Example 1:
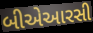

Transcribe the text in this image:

બીએઆરસી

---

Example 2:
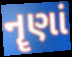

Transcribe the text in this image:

નૄણાં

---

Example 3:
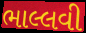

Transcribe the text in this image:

ભાલ્લવી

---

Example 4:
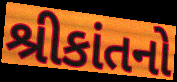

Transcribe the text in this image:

શ્રીકાંતનો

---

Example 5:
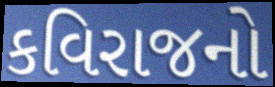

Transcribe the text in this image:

કવિરાજનો